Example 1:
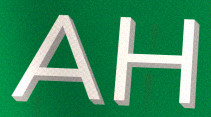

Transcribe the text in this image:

AH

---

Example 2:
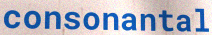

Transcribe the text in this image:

consonantal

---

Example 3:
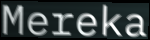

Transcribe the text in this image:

Mereka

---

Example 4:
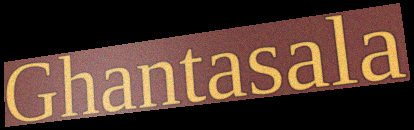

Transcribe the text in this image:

Ghantasala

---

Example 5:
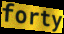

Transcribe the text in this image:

forty